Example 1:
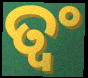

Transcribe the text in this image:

ତ୍ୱଂ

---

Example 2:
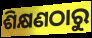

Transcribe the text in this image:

ଶିକ୍ଷଣଠାରୁ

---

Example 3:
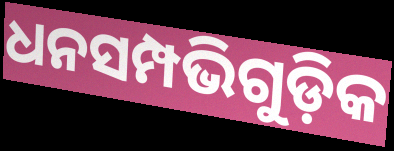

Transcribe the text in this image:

ଧନସମ୍ପଭିଗୁଡ଼ିକ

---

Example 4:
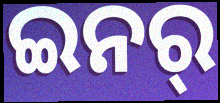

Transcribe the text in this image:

ଇନର୍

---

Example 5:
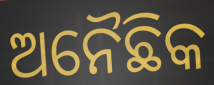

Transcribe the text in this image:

ଅନୈଛିକ